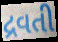
દ્રવતી